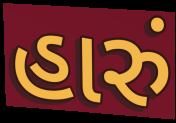
હારું